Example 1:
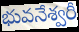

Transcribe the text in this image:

భువనేశ్వరీ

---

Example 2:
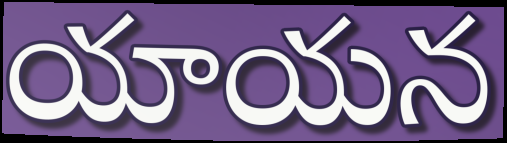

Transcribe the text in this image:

యాయన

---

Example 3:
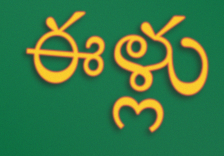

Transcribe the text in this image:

ఈళ్లు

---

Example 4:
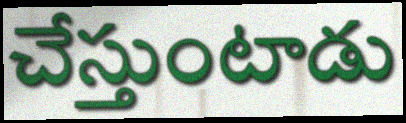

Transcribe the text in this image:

చేస్తుంటాడు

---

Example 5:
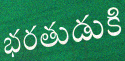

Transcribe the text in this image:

భరతుడుకి